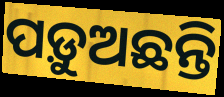
ପଡ଼ୁଅଛନ୍ତି